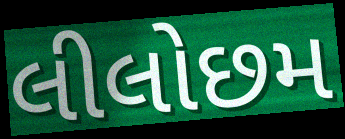
લીલોછમ